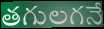
తగులగనే